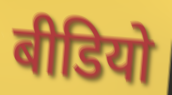
बीडियो